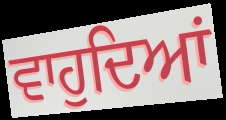
ਵਾਹੁਦਿਆਂ